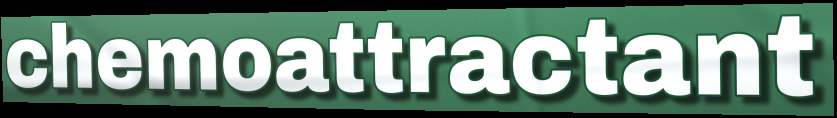
chemoattractant